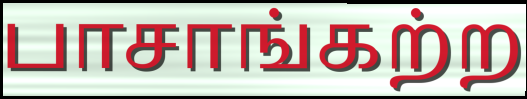
பாசாங்கற்ற